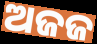
ଅଜଜ